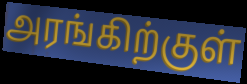
அரங்கிற்குள்